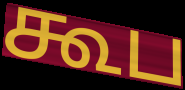
கூப